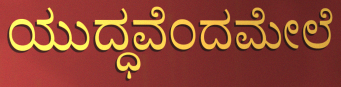
ಯುದ್ಧವೆಂದಮೇಲೆ